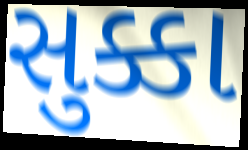
સુક્કા